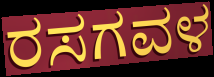
ರಸಗವಳ